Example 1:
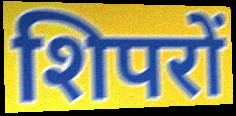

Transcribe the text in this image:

शिपरों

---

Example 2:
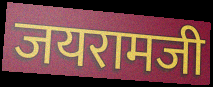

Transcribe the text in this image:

जयरामजी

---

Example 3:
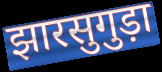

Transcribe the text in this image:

झारसुगुड़ा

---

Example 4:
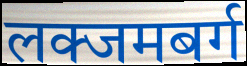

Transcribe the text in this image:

लक्जमबर्ग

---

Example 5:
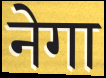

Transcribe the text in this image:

नेगा